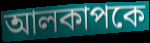
আলকাপকে